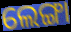
ଲେଙ୍ଗା